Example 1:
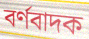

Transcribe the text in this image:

বৰ্ণবাদক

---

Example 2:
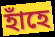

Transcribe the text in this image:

হাঁহে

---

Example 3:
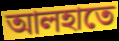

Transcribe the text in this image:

আলহাতে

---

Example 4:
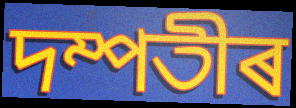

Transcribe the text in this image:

দম্পতীৰ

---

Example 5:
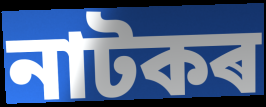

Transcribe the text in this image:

নাটকৰ